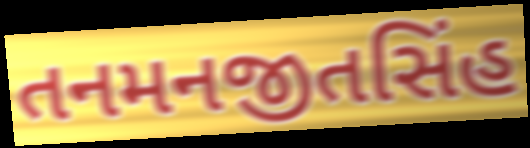
તનમનજીતસિંહ